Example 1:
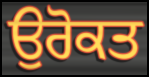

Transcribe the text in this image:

ਉਰੋਕਤ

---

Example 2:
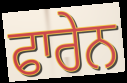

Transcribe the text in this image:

ਫਾਰੇਨ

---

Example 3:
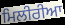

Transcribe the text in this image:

ਮਿਲੀਰੀਆ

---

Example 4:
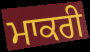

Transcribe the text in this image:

ਮਾਕਰੀ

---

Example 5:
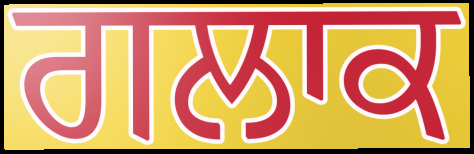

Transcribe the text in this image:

ਗਲਾਕ